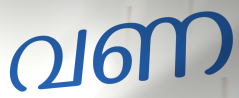
വണ